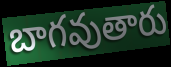
బాగవుతారు